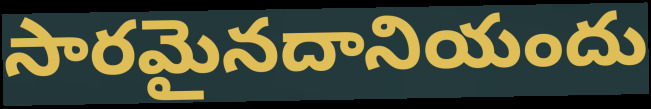
సారమైనదానియందు